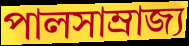
পালসাম্রাজ্য